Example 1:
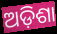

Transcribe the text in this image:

ଅଡ଼ିଶା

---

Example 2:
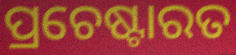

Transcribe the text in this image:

ପ୍ରଚେଷ୍ଟାରତ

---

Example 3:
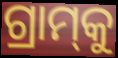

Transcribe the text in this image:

ଗ୍ରାମ୍‌କୁ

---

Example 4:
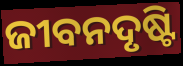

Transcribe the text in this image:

ଜୀବନଦୃଷ୍ଟି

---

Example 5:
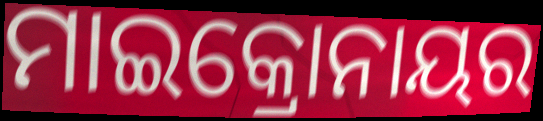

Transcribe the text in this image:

ମାଇକ୍ରୋନାୟର